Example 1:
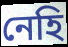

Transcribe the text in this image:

নেহি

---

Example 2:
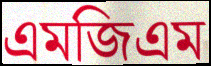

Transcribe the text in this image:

এমজিএম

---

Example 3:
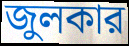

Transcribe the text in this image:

জুলকার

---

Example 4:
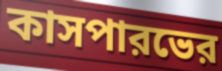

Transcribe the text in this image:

কাসপারভের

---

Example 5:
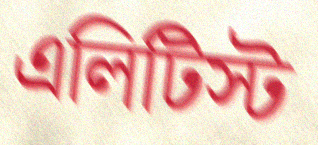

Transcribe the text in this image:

এলিটিস্ট